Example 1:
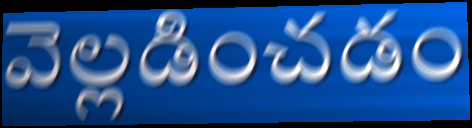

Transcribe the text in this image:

వెల్లడించడం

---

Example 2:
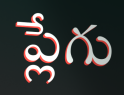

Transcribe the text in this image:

ప్లేగు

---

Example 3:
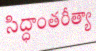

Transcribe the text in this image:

సిద్ధాంతరీత్యా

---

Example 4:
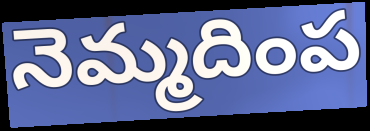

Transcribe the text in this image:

నెమ్మదింప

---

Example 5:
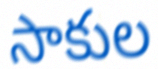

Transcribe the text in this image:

సాకుల